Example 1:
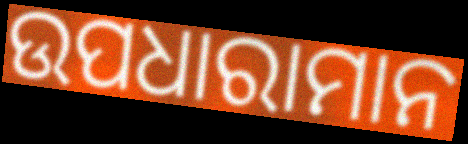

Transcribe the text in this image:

ଉପଧାରାମାନ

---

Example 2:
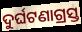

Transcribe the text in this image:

ଦୁର୍ଘଟଣାଗ୍ରସ୍ତ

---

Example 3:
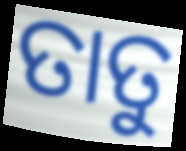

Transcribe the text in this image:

ତାତୁ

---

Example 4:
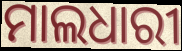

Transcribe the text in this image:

ମାଲଧାରୀ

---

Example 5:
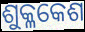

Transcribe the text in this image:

ଶୁକ୍ଳକେଶ